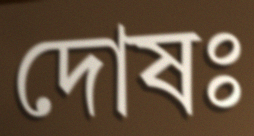
দোষঃ